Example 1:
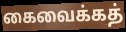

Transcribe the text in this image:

கைவைக்கத்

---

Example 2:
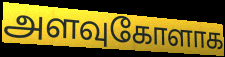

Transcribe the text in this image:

அளவுகோளாக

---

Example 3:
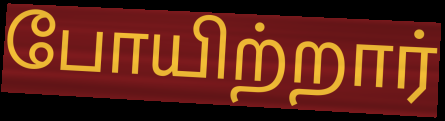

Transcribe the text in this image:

போயிற்றார்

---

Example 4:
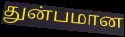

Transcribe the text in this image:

துன்பமான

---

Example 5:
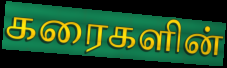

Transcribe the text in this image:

கரைகளின்